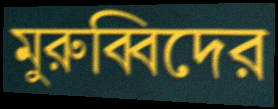
মুরুব্বিদের